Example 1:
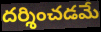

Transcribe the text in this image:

దర్శించడమే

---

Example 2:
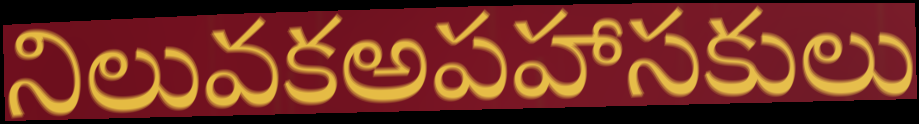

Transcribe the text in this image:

నిలువకఅపహాసకులు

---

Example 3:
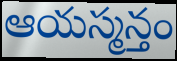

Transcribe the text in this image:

ఆయస్మన్తం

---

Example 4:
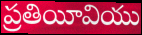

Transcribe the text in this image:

ప్రతియీవియు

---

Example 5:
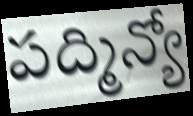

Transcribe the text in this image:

పద్మిన్యో